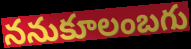
ననుకూలంబగు